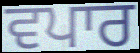
ਵਪਾਰ